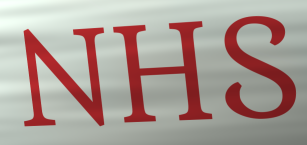
NHS